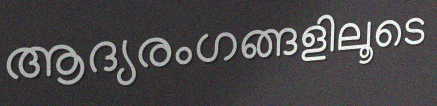
ആദ്യരംഗങ്ങളിലൂടെ